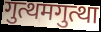
गुत्थमगुत्था